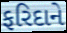
ફરિદાને